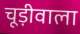
चूड़ीवाला